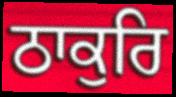
ਠਾਕੁਰਿ